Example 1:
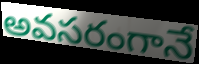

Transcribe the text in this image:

అవసరంగానే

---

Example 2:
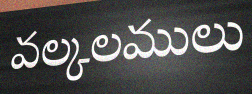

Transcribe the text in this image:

వల్కలములు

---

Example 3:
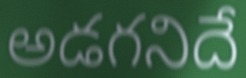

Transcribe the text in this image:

అడగనిదే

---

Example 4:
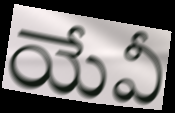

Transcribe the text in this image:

యేవీ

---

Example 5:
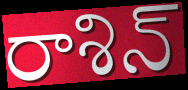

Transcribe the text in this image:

రాశిన్